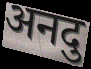
अनदु